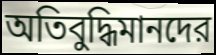
অতিবুদ্ধিমানদের